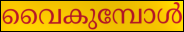
വൈകുമ്പോൾ